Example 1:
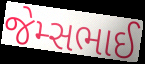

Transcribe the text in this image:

જેમ્સભાઈ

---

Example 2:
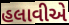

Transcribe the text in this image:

હલાવીએ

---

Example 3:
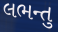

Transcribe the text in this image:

લભન્તુ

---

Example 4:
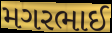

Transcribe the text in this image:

મગરભાઈ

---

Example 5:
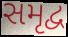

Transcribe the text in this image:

સમૃદ્વ